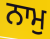
ਨਾਮੁ